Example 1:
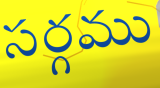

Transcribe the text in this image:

సర్గము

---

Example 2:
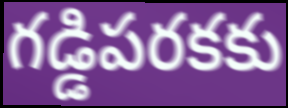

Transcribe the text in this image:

గడ్డిపరకకు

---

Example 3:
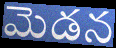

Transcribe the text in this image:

మెడన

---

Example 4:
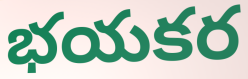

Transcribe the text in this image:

భయకర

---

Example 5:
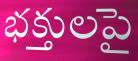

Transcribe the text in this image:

భక్తులపై